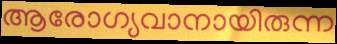
ആരോഗ്യവാനായിരുന്ന